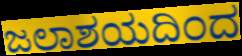
ಜಲಾಶಯದಿಂದ